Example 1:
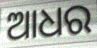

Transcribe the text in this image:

ଆଧର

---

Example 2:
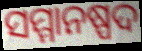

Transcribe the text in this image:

ସମ୍ମାନଷ୍ପଦ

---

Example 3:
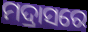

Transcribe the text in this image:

ମଦ୍ରାସରେ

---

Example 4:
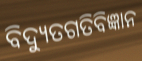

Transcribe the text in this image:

ବିଦ୍ୟୁତଗତିବିଜ୍ଞାନ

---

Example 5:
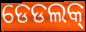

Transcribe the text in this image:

ଡେଡଲକ୍